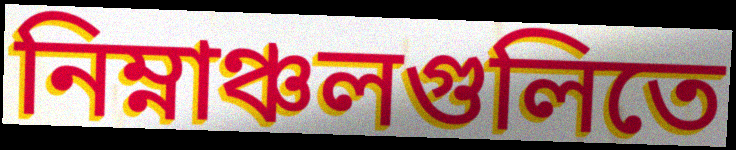
নিম্নাঞ্চলগুলিতে